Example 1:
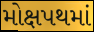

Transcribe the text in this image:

મોક્ષપથમાં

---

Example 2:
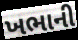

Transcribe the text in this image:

ખભાની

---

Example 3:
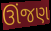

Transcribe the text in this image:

ઊંજણ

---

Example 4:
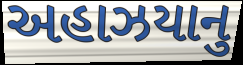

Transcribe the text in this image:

અહાઝયાનુ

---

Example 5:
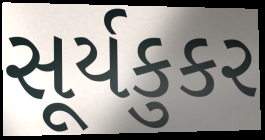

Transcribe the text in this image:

સૂર્યકુકર